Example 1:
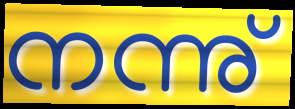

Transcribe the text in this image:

നന്നു്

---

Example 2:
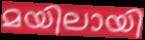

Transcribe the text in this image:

മയിലായി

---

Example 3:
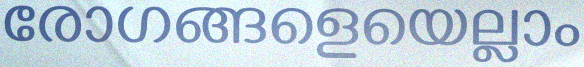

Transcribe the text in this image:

രോഗങ്ങളെയെല്ലാം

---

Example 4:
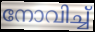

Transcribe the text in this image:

നോവിച്ച്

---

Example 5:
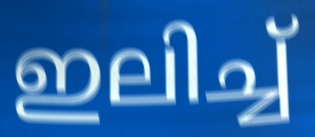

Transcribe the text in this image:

ഇലിച്ച്